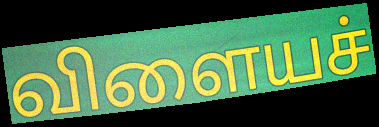
விளையச்